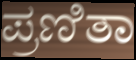
ಪ್ರಣಿತಾ